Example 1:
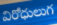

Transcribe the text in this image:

విరోధులుగ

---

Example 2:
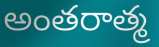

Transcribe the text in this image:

అంతరాత్మ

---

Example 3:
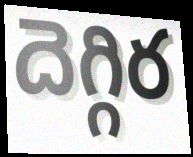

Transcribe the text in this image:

దెగ్గిర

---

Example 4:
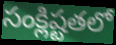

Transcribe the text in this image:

సంక్లిష్టతలో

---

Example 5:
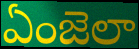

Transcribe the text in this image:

ఏంజెలా